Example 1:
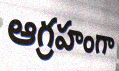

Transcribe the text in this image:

ఆగ్రహంగా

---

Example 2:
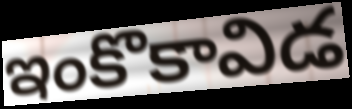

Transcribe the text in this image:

ఇంకొకావిడ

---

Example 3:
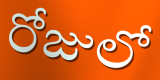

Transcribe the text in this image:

రోజులో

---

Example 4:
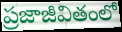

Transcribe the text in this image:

ప్రజాజీవితంలో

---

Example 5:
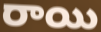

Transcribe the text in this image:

రాయి